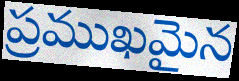
ప్రముఖమైన